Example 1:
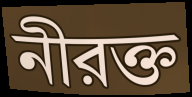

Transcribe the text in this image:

নীরক্ত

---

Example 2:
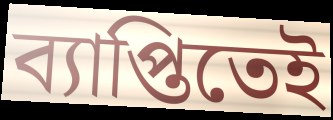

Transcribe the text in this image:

ব্যাপ্তিতেই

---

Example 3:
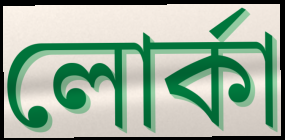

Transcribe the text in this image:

লোর্কা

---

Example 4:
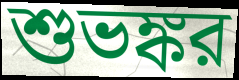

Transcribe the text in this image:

শুভঙ্কর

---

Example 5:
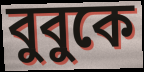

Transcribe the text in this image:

বুবুকে